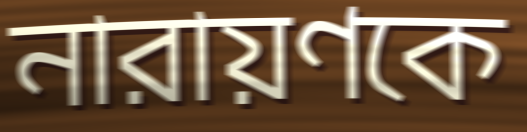
নারায়ণকে